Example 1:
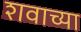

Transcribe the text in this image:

शवाच्या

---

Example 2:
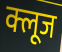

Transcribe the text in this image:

क्लूज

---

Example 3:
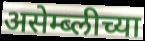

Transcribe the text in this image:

असेम्ब्लीच्या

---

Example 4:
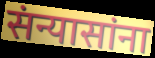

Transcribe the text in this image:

संन्यासांना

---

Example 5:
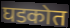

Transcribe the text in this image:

घडकोत